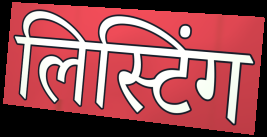
लिस्टिंग